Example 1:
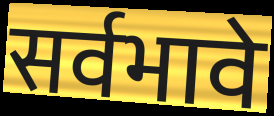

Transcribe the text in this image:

सर्वभावे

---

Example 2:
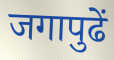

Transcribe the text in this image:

जगापुढें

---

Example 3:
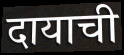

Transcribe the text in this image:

दायाची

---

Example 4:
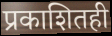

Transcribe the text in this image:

प्रकाशितही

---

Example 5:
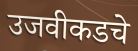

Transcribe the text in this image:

उजवीकडचे